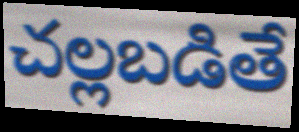
చల్లబడితే